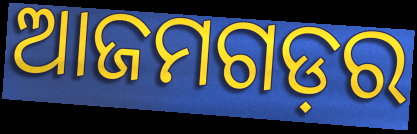
ଆଜମଗଡ଼ର